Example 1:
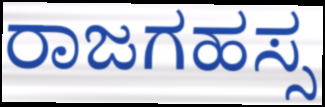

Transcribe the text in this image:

ರಾಜಗಹಸ್ಸ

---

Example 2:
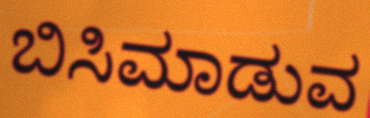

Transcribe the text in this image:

ಬಿಸಿಮಾಡುವ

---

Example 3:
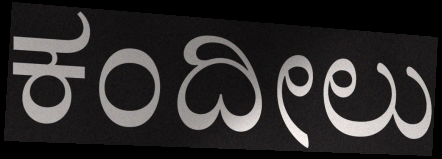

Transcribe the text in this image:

ಕಂದೀಲು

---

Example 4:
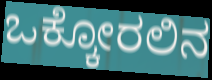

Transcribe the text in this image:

ಒಕ್ಕೋರಲಿನ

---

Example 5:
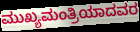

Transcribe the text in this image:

ಮುಖ್ಯಮಂತ್ರಿಯಾದವರ